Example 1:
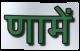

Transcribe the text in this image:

णामें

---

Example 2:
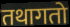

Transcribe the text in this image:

तथागतो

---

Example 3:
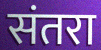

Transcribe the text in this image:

संतरा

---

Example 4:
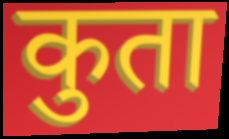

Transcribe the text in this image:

कुता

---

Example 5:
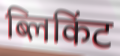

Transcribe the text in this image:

ब्लिकिंट